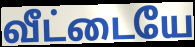
வீட்டையே